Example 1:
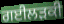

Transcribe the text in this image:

ਗਈਲੜਕੀ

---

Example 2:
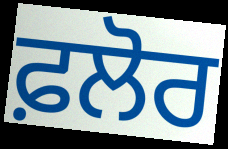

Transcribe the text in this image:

ਫ਼ਲੋਰ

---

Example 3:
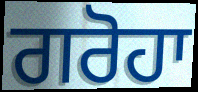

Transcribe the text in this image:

ਗਰੋਹਾ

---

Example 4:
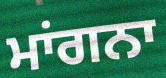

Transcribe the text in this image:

ਮਾਂਗਨਾ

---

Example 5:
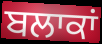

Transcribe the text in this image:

ਬਲਾਕਾਂ